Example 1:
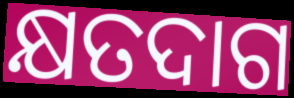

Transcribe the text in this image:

କ୍ଷତଦାଗ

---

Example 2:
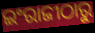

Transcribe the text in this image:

ଇଂରାଜୀଠାରୁ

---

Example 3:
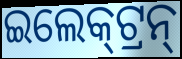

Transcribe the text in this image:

ଇଲେକ୍‍ଟ୍ରନ୍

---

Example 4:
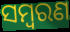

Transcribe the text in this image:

ସମ୍ଵରଣ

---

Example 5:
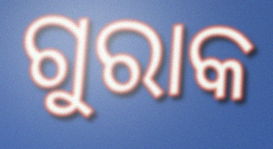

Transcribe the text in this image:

ଗୁରାକ